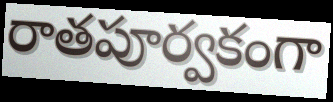
రాతపూర్వకంగా